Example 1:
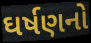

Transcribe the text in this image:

ઘર્ષણનો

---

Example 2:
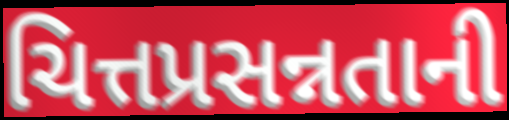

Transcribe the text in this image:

ચિત્તપ્રસન્નતાની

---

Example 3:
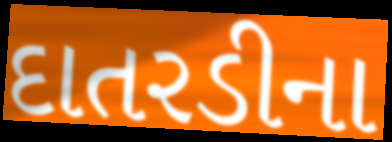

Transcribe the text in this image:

દાતરડીના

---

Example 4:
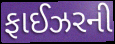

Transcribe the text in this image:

ફાઈઝરની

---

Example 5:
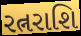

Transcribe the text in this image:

રત્નરાશિ